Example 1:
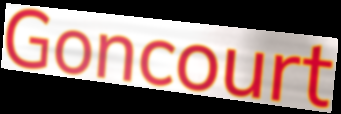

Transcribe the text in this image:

Goncourt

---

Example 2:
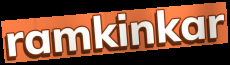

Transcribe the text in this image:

ramkinkar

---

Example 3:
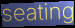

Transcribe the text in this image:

seating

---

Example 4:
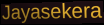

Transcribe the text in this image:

Jayasekera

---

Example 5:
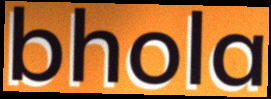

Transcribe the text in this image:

bhola